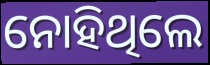
ନୋହିଥିଲେ